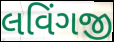
લવિંગજી